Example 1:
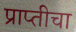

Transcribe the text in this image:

प्राप्तीचा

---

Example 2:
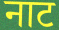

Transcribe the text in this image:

नाट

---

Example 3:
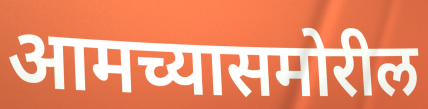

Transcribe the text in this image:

आमच्यासमोरील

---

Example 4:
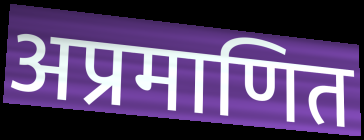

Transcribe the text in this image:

अप्रमाणित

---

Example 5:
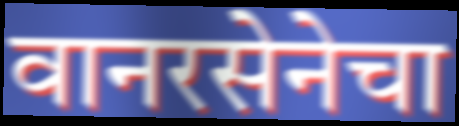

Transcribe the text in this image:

वानरसेनेचा